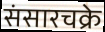
संसारचक्रे